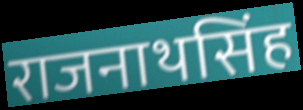
राजनाथसिंह